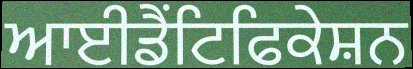
ਆਈਡੈਂਟਿਫਿਕੇਸ਼ਨ